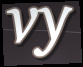
vy